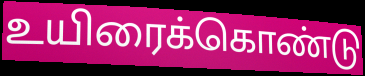
உயிரைக்கொண்டு